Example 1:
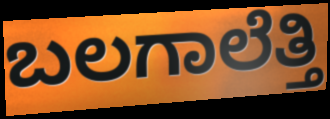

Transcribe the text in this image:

ಬಲಗಾಲೆತ್ತಿ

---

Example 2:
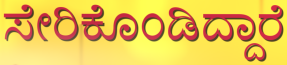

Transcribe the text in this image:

ಸೇರಿಕೊಂಡಿದ್ದಾರೆ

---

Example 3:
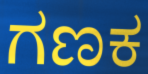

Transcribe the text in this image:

ಗಣಕ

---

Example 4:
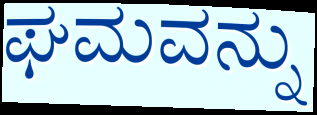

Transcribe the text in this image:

ಘಮವನ್ನು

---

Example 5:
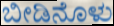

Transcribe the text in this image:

ಬೀಡಿನೊಳು